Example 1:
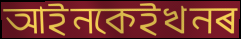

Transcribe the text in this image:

আইনকেইখনৰ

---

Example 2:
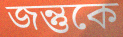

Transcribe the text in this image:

জন্তুকে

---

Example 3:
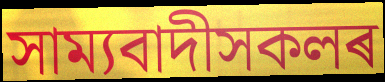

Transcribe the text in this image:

সাম্যবাদীসকলৰ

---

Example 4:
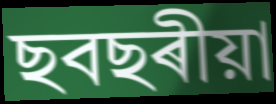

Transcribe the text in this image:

ছবছৰীয়া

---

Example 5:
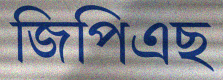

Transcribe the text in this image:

জিপিএছ